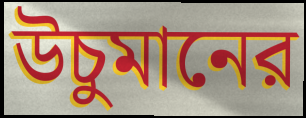
উচুমানের